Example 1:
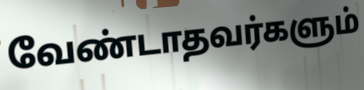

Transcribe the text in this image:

வேண்டாதவர்களும்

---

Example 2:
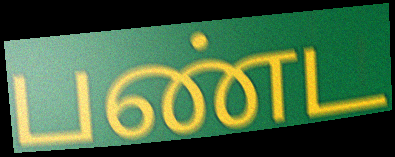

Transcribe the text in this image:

பண்ட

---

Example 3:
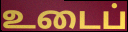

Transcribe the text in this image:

உடைப்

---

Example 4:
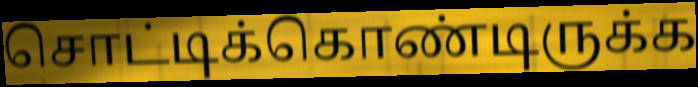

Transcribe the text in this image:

சொட்டிக்கொண்டிருக்க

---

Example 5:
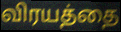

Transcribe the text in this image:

விரயத்தை